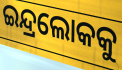
ଇନ୍ଦ୍ରଲୋକକୁ